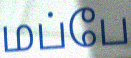
மப்பே